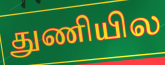
துணியில